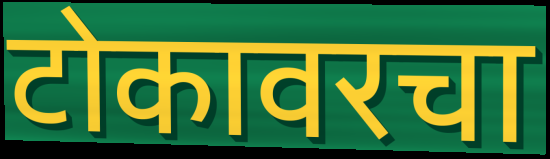
टोकावरचा